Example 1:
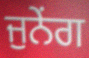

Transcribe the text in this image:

ਜੁਨੇਂਗ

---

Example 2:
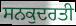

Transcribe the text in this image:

ਸਨਕੁਦਰਤੀ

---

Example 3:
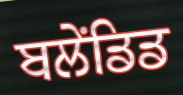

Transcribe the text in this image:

ਬਲੇਂਡਿਡ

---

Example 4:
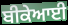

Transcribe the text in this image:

ਬੀਕੇਆਈ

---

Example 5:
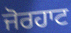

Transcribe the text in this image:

ਜੋਰਹਾਟ